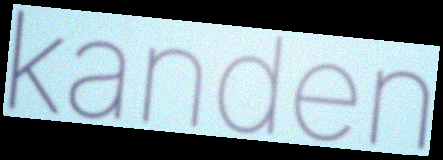
kanden